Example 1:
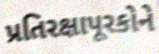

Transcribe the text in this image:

પ્રતિરક્ષાપૂરકોને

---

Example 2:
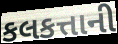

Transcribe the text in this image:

કલકત્તાની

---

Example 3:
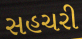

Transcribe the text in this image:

સહચરી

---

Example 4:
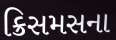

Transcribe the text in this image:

ક્રિસમસના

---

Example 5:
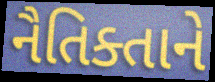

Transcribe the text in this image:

નૈતિક્તાને